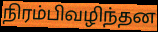
நிரம்பிவழிந்தன